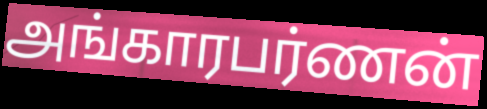
அங்காரபர்ணன்